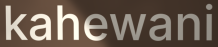
kahewani